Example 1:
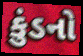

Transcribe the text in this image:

કુંડનો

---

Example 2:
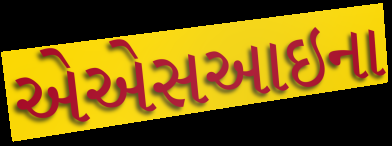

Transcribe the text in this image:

એએસઆઇના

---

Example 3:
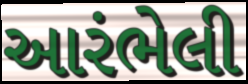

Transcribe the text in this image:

આરંભેલી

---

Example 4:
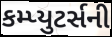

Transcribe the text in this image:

કમ્પ્યુટર્સની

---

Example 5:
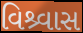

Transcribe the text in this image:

વિશ્ર્વાસ